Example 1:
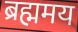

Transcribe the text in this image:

ब्रह्ममय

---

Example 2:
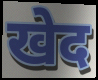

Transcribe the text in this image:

खेद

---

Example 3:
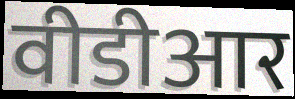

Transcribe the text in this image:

वीडीआर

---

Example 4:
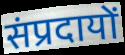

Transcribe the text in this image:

संप्रदायों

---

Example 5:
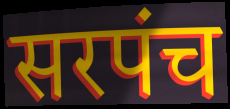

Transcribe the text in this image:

सरपंच